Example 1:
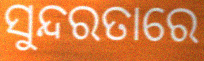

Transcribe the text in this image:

ସୁନ୍ଦରତାରେ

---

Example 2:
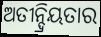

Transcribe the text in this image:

ଅତୀନ୍ଦ୍ରିୟତାର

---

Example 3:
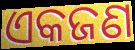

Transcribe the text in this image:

ଏକଜଣ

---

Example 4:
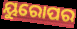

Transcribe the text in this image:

ୟୁରୋପର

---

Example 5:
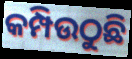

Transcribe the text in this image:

କମ୍ପିଉଠୁଛି